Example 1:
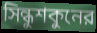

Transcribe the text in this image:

সিন্ধুশকুনের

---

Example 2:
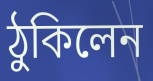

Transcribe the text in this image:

ঠুকিলেন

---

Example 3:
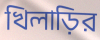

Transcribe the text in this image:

খিলাড়ির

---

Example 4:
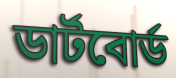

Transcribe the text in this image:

ডার্টবোর্ড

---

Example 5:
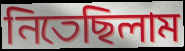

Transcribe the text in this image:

নিতেছিলাম